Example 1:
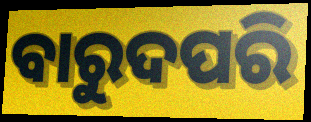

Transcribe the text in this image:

ବାରୁଦପରି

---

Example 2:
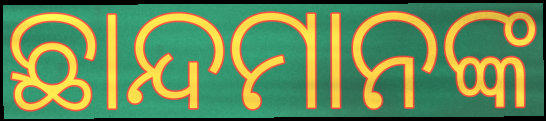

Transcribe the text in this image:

ଛାନ୍ଦମାନଙ୍କ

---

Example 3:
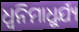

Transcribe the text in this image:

ଧ୍ୱନିମାଧୁର୍ଯ୍ୟ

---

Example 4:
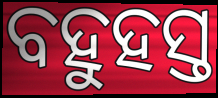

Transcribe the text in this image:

ବହୁହସ୍ତ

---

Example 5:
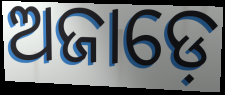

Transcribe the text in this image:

ଅଜାଡ଼େ